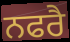
ਨਫਰੈ